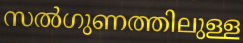
സൽഗുണത്തിലുള്ള